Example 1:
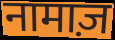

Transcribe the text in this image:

नामाज़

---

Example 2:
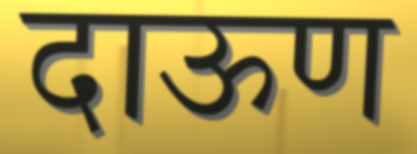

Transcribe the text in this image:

दाऊण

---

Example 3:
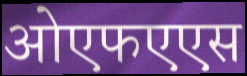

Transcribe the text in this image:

ओएफएएस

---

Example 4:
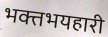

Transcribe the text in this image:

भक्तभयहारी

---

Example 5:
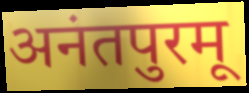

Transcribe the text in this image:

अनंतपुरमू